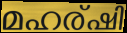
മഹര്ഷി